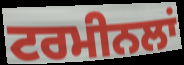
ਟਰਮੀਨਲਾਂ